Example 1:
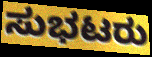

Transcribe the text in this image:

ಸುಭಟರು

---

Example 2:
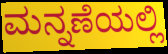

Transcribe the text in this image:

ಮನ್ನಣೆಯಲ್ಲಿ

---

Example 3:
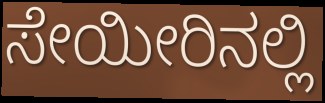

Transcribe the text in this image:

ಸೇಯೀರಿನಲ್ಲಿ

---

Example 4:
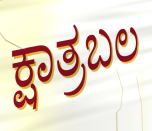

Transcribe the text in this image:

ಕ್ಷಾತ್ರಬಲ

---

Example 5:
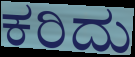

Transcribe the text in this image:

ಕರಿದು